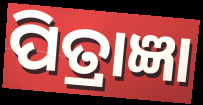
ପିତ୍ରାଜ୍ଞା